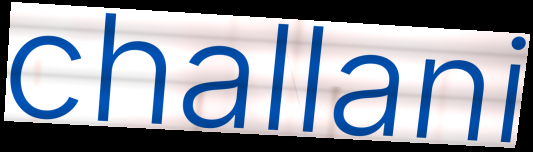
challani